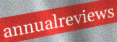
annualreviews